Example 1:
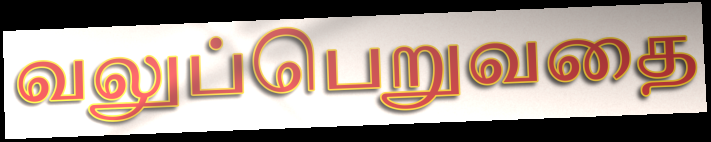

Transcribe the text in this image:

வலுப்பெறுவதை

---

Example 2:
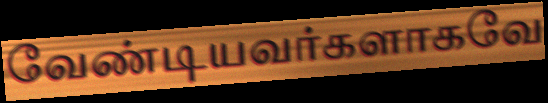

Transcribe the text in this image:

வேண்டியவர்களாகவே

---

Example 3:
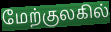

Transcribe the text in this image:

மேற்குலகில்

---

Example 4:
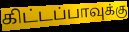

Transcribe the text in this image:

கிட்டப்பாவுக்கு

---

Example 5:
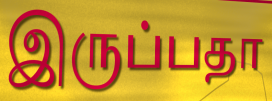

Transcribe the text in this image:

இருப்பதா